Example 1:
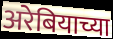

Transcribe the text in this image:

अरेबियाच्या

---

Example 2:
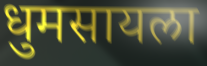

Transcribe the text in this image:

धुमसायला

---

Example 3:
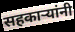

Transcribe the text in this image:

सहकाऱ्यांनी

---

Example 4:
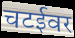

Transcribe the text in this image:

चटईवर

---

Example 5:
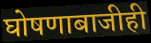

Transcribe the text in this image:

घोषणाबाजीही